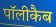
पॉलीकैब